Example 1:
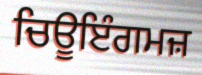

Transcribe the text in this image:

ਚਿਊਇੰਗਮਜ਼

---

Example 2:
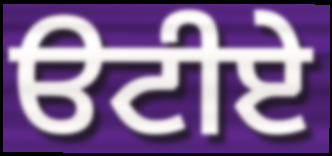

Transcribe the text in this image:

ੳਟੀਏ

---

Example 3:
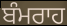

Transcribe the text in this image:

ਬੰਮਰਾਹ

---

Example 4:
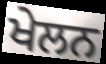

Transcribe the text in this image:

ਖੇਲਨ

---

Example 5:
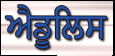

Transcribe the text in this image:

ਐਡੂਲਿਸ